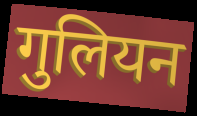
गुलियन